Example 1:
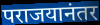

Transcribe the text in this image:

पराजयानंतर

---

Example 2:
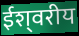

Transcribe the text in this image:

ईश्वरीय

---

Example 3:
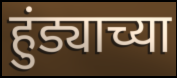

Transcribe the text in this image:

हुंड्याच्या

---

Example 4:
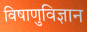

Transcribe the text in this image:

विषाणुविज्ञान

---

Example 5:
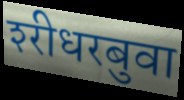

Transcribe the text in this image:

श्रीधरबुवा